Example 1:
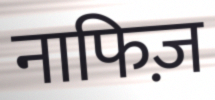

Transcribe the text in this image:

नाफिज़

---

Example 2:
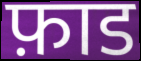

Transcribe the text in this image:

फ़ाड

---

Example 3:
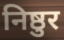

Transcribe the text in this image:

निष्ठुर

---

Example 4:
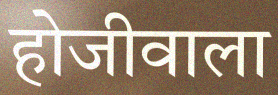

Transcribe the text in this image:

होजीवाला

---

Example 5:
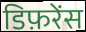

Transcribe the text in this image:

डिफ़रेंस